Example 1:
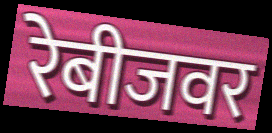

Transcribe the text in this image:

रेबीजवर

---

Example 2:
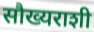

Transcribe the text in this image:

सौख्यराशी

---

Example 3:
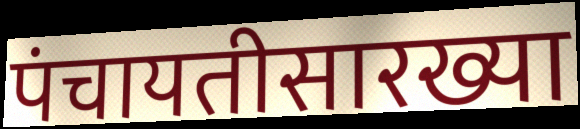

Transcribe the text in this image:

पंचायतीसारख्या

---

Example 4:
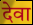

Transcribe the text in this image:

देवा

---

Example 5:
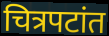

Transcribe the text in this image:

चित्रपटांत